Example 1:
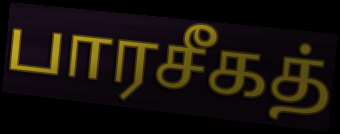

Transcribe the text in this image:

பாரசீகத்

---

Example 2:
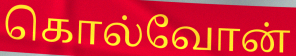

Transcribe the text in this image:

கொல்வோன்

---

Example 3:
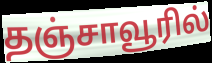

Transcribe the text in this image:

தஞ்சாவூரில்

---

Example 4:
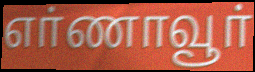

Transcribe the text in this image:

எர்ணாவூர்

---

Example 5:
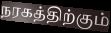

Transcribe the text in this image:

நரகத்திற்கும்